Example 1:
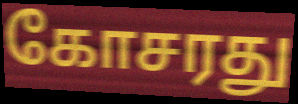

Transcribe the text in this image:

கோசரது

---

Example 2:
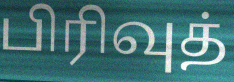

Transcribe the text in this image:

பிரிவுத்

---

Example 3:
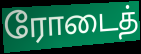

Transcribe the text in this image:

ரோடைத்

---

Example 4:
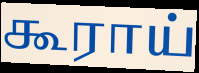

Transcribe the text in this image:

கூராய்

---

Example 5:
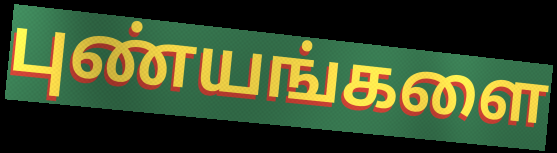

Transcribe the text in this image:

புண்யங்களை